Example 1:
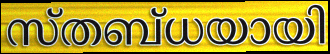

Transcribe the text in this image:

സ്തബ്ധയായി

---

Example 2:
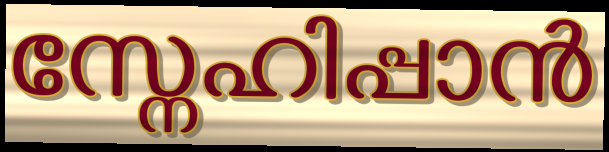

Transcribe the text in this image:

സ്നേഹിപ്പാൻ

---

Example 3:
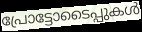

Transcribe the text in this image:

പ്രോട്ടോടൈപ്പുകൾ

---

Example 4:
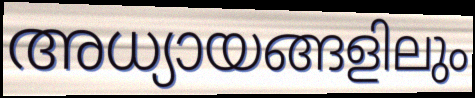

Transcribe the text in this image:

അധ്യായങ്ങളിലും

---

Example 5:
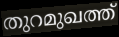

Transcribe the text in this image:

തുറമുഖത്ത്